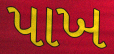
પાખ